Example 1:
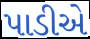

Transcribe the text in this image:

પાડીએ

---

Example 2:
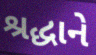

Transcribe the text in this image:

શ્રદ્ધાને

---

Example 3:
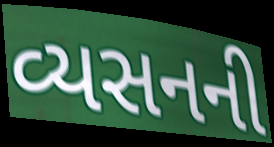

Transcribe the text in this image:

વ્યસનની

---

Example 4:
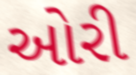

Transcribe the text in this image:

ઓરી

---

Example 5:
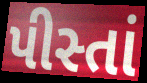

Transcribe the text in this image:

પીસ્તાં